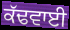
ਕੱਢਵਾਈ